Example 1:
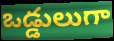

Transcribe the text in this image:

ఒడ్డులుగా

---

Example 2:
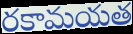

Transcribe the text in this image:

రకామయత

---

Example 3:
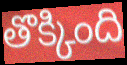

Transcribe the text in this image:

తొక్కింది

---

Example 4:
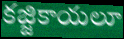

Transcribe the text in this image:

కజ్జికాయలూ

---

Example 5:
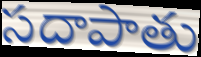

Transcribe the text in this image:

సదాపాతు